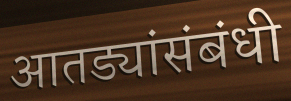
आतड्यांसंबंधी